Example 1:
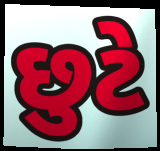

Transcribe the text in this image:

છુટે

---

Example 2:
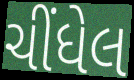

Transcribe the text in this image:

ચીંધેલ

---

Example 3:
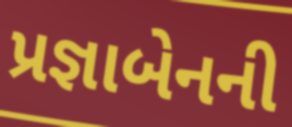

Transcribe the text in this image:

પ્રજ્ઞાબેનની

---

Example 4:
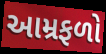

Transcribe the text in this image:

આમ્રફળો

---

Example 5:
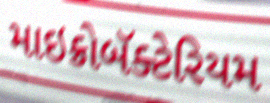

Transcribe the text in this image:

માઇક્રોબૅક્ટેરિયમ